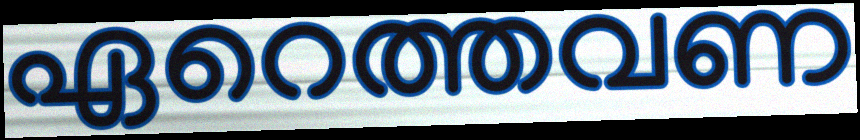
ഏറെത്തവണ